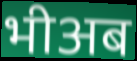
भीअब